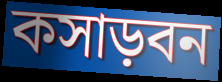
কসাড়বন